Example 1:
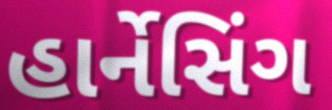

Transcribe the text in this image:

હાર્નેસિંગ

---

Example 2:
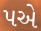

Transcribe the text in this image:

પએ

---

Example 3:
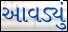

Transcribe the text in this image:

આવડ્યું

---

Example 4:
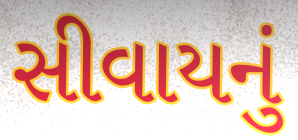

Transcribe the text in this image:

સીવાયનું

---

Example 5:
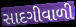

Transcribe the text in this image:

સાદગીવાળી